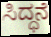
ಸಿದ್ಧನೆ